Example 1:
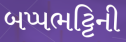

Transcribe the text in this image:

બપ્પભટ્ટિની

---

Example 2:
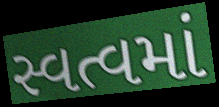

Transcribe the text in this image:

સ્વત્વમાં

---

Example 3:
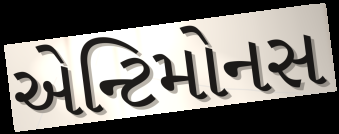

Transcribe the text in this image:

એન્ટિમોનસ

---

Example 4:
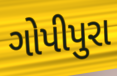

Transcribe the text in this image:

ગોપીપુરા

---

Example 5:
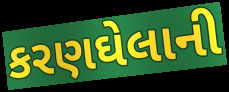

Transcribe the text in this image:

કરણઘેલાની